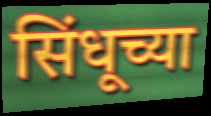
सिंधूच्या